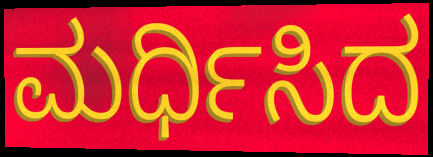
ಮರ್ಧಿಸಿದ